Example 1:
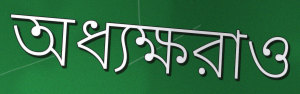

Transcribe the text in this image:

অধ্যক্ষরাও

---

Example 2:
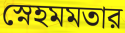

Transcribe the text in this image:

স্নেহমমতার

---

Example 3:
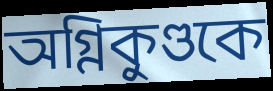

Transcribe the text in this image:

অগ্নিকুণ্ডকে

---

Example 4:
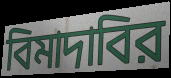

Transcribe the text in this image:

বিমাদাবির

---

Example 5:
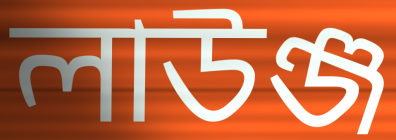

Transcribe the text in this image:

লাউঞ্জ